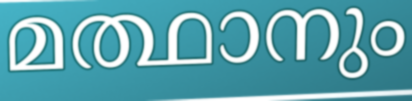
മത്ഥാനും